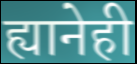
ह्यानेही